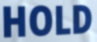
HOLD